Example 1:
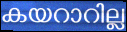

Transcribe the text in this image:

കയറാറില്ല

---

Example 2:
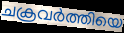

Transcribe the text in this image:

ചക്രവർത്തിയെ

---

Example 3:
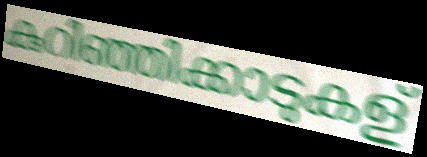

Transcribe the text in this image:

കുറിഞ്ഞിക്കാടുകള്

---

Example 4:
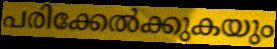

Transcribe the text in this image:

പരിക്കേൽക്കുകയും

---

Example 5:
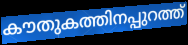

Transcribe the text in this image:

കൗതുകത്തിനപ്പുറത്ത്